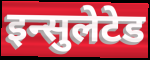
इन्सुलेटेड